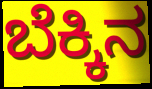
ಬೆಕ್ಕಿನ